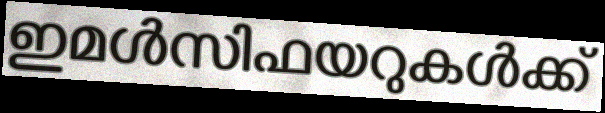
ഇമൾസിഫയറുകൾക്ക്